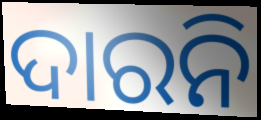
ଦାରନି